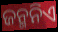
ଜନ୍ମନିଏ